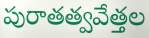
పురాతత్వవేత్తల